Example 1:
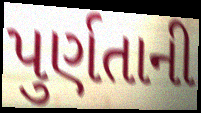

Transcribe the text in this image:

પુર્ણતાની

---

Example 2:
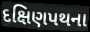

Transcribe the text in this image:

દક્ષિણપથના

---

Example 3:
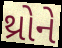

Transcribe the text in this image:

થ્રોને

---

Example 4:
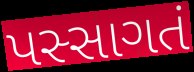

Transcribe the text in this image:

પસ્સાગતં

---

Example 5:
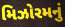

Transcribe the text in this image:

મિઝોરમનું